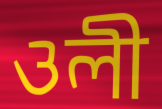
ওলী